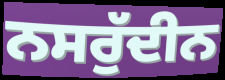
ਨਸਰੁੱਦੀਨ